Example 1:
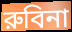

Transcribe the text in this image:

রুবিনা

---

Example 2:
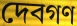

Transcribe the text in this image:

দেবগণ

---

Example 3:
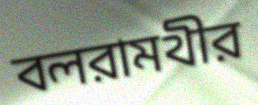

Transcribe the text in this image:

বলরামথীর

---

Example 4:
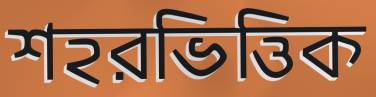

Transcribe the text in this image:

শহরভিত্তিক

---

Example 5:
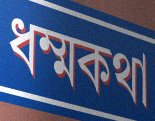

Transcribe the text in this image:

ধম্মকথা